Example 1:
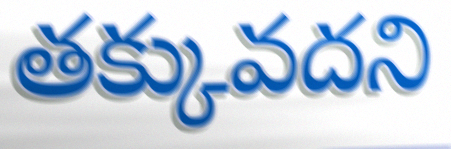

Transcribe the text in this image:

తక్కువదని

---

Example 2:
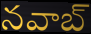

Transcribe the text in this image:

నవాబ్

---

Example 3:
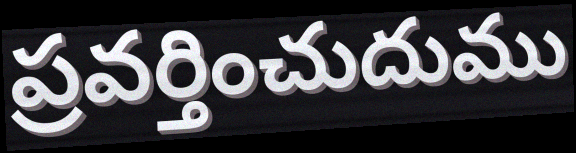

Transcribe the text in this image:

ప్రవర్తించుదుము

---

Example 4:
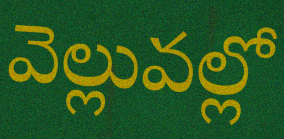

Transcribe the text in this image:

వెల్లువల్లో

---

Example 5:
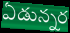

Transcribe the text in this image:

ఏడున్నర